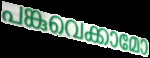
പങ്കുവെക്കാമോ